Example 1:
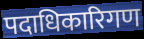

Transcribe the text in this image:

पदाधिकारिगण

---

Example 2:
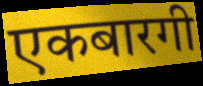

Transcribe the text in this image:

एकबारगी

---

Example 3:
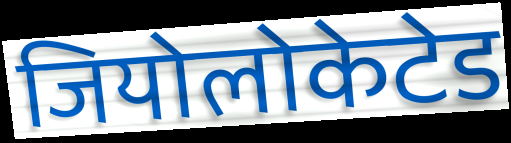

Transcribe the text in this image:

जियोलोकेटेड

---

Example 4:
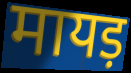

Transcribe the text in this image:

मायड़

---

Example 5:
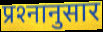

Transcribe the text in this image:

प्रश्नानुसार